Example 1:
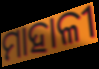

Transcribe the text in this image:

ମାହାଳୀ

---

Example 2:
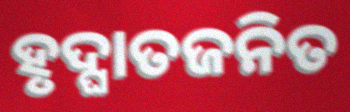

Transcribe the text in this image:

ହୃଦ୍ଘାତଜନିତ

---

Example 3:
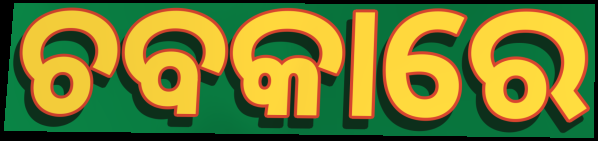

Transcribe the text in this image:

ଚବକାରେ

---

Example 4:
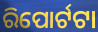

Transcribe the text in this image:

ରିପୋର୍ଟଟା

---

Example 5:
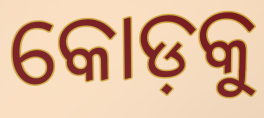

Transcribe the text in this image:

କୋଡ଼କୁ